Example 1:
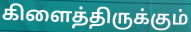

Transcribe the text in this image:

கிளைத்திருக்கும்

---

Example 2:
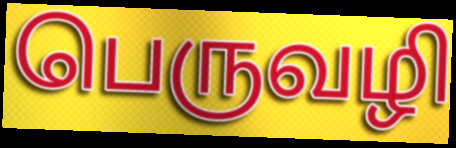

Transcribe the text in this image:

பெருவழி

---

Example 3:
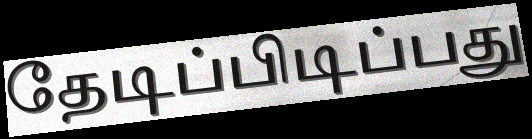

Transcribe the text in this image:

தேடிப்பிடிப்பது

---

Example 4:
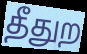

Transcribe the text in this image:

தீதுற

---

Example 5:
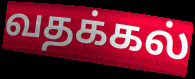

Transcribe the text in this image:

வதக்கல்